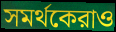
সমর্থকেরাও